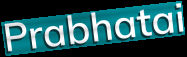
Prabhatai